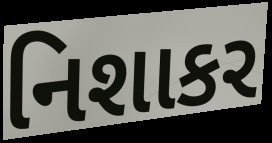
નિશાકર